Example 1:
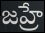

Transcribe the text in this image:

జహ్రే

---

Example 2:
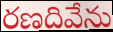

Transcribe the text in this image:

రణదివేను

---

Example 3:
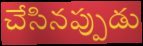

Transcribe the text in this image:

చేసినప్పుడు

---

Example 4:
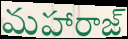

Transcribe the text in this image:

మహారాజ్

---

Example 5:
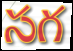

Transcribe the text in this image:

సగ